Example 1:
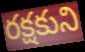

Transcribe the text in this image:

రక్షకుని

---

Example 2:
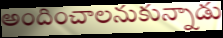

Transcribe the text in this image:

అందించాలనుకున్నాడు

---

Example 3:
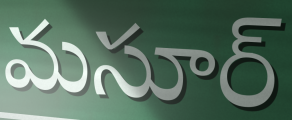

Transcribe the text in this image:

మసూర్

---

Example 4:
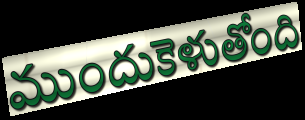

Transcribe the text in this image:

ముందుకెళుతోంది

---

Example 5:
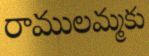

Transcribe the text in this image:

రాములమ్మకు